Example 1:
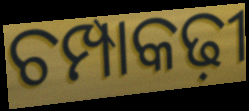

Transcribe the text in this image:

ଚମ୍ପାକଢ଼ୀ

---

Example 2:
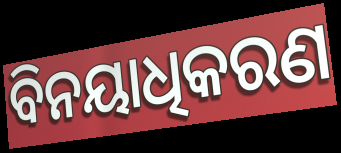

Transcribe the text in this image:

ବିନୟାଧିକରଣ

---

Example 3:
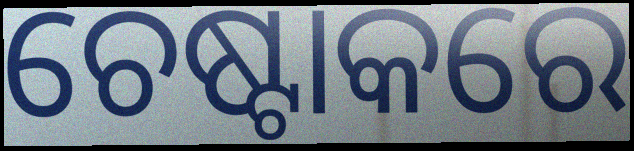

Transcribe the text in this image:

ଚେଷ୍ଟାକରେ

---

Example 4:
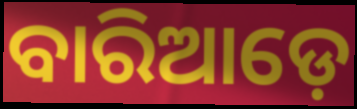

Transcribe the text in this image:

ବାରିଆଡ଼େ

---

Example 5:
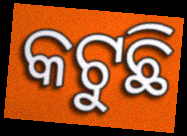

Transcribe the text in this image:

କଟୁଛି